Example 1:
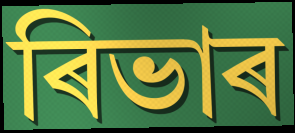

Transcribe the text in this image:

ৰিভাৰ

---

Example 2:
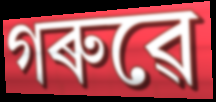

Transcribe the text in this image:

গৰুৱে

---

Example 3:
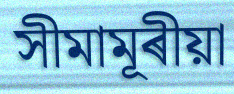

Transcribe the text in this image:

সীমামূৰীয়া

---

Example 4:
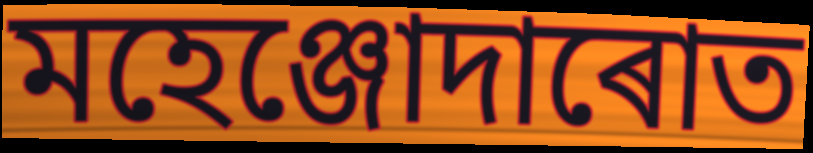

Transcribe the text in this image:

মহেঞ্জোদাৰোত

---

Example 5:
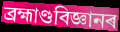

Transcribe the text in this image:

ব্ৰহ্মাণ্ডবিজ্ঞানৰ